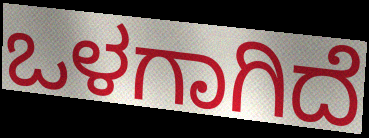
ಒಳಗಾಗಿದೆ